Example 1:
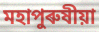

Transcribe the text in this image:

মহাপুৰুষীয়া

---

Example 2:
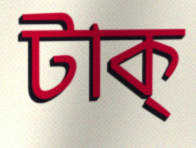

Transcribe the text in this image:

টাক্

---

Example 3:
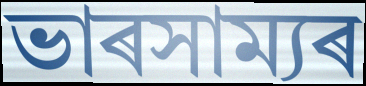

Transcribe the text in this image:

ভাৰসাম্যৰ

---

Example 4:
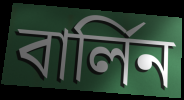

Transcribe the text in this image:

বাৰ্লিন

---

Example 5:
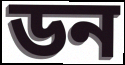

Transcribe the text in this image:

ডন